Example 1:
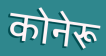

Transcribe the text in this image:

कोनेरू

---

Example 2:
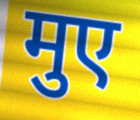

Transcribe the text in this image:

मुए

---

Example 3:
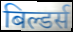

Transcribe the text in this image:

बिल्डर्स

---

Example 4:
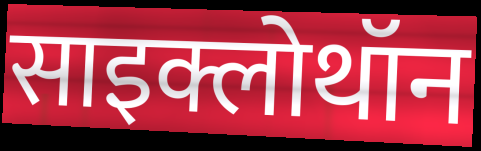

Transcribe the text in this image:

साइक्लोथॉन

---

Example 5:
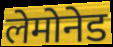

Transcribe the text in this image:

लेमोनेड